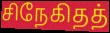
சிநேகிதத்